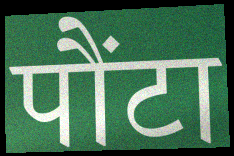
पौंटा